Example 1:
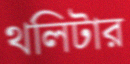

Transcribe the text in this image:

থলিটার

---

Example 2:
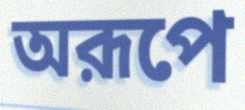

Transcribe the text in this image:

অরূপে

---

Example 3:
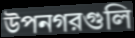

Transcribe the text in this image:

উপনগরগুলি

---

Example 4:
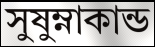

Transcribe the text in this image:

সুষুম্নাকান্ড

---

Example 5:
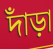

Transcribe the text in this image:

দাঁড়া